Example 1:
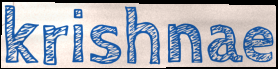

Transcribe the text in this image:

krishnae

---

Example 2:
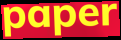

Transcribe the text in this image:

paper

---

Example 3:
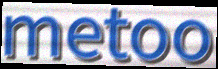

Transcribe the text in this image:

metoo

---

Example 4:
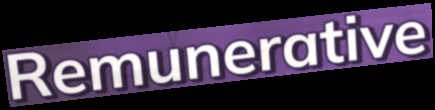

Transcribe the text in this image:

Remunerative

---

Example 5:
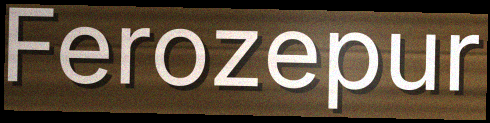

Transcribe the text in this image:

Ferozepur